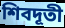
শিবদূতী